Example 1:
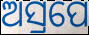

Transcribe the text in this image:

ଅସ୍ରପେ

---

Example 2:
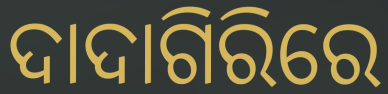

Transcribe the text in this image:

ଦାଦାଗିରିରେ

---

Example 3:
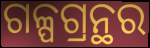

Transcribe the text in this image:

ଗଳ୍ପଗ୍ରନ୍ଥର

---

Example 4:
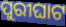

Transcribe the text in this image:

ପୁରୀଘାଟ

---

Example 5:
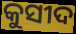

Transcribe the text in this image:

କୁସୀଦ